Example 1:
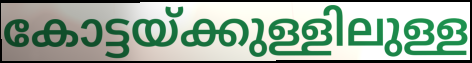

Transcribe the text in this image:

കോട്ടയ്ക്കുള്ളിലുള്ള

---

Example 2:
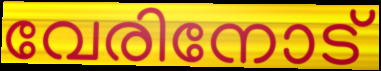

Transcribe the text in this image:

വേരിനോട്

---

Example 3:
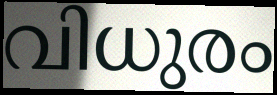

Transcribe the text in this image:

വിധുരം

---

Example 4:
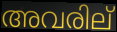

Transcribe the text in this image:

അവരില്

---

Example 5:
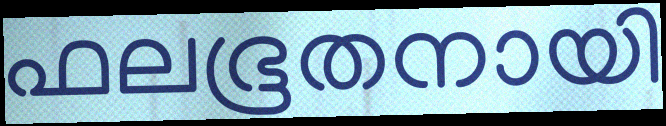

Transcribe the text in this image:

ഫലഭൂതനായി